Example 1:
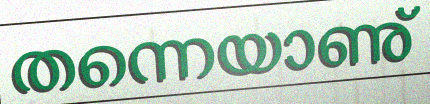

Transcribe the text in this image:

തന്നെയാണു്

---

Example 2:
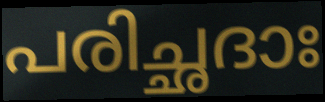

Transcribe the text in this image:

പരിച്ഛദാഃ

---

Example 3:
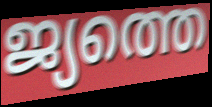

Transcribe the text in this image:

ജ്യത്തെ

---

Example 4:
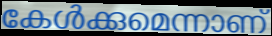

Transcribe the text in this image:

കേൾക്കുമെന്നാണ്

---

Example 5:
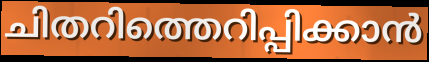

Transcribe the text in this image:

ചിതറിത്തെറിപ്പിക്കാൻ